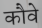
कौवे